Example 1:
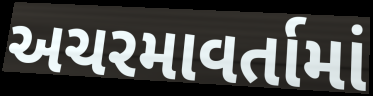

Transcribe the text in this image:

અચરમાવર્તામાં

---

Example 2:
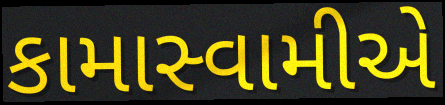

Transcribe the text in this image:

કામાસ્વામીએ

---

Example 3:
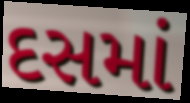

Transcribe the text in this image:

દસમાં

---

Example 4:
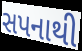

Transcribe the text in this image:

સપનાથી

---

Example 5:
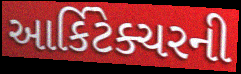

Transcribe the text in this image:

આર્કિટેક્ચરની